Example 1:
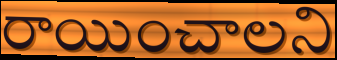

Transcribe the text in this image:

రాయించాలని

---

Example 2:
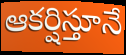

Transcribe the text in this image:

ఆకర్షిస్తూనే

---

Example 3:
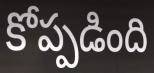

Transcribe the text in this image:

కోప్పడింది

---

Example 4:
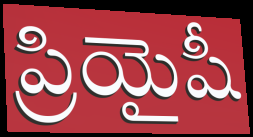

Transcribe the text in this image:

ప్రియైషీ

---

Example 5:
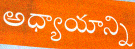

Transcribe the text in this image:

అధ్యాయాన్ని